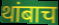
थांबाच